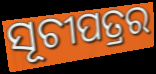
ସୂଚୀପତ୍ରର